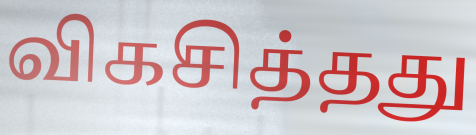
விகசித்தது